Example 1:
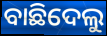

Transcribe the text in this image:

ବାଛିଦେଲୁ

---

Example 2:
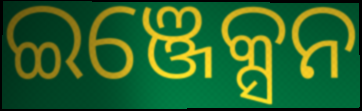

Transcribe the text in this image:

ଇଞ୍ଜେକ୍ସନ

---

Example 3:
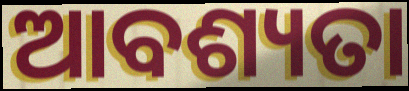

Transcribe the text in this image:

ଆବଶ୍ୟତା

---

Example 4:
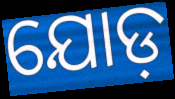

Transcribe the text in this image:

ଯୋଡ଼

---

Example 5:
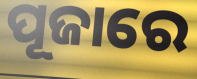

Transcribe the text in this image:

ପୂଜାରେ